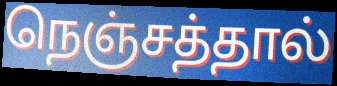
நெஞ்சத்தால்